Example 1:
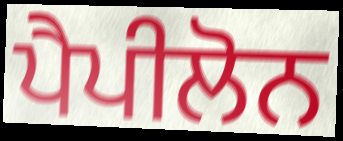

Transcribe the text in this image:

ਪੈਪੀਲੋਨ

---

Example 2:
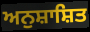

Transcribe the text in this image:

ਅਨੁਸ਼ਾਸ਼ਿਤ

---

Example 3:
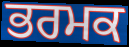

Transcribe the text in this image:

ਭਰਮਕ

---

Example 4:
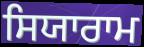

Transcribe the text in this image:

ਸਿਯਾਰਾਮ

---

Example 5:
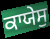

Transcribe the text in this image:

ਕਾਯੇਸੁ